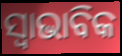
ସ୍ୱାଭାବିକ